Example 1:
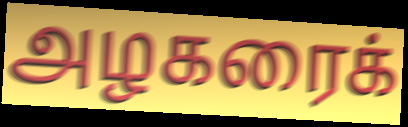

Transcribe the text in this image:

அழகரைக்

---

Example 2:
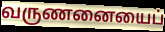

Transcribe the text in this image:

வருணனையைப்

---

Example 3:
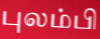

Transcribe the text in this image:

புலம்பி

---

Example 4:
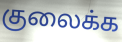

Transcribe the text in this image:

குலைக்க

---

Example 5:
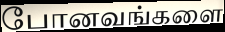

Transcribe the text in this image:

போனவங்களை